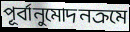
পূর্বানুমোদনক্রমে